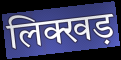
लिक्खड़